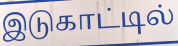
இடுகாட்டில்